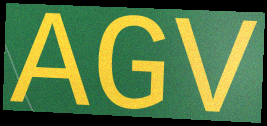
AGV